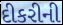
દીકરીની